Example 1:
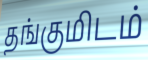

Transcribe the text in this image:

தங்குமிடம்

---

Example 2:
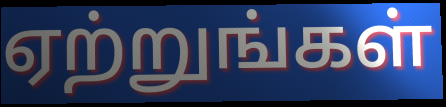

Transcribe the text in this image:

ஏற்றுங்கள்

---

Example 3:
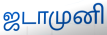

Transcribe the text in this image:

ஜடாமுனி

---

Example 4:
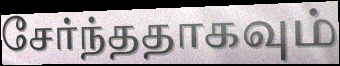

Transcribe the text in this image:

சேர்ந்ததாகவும்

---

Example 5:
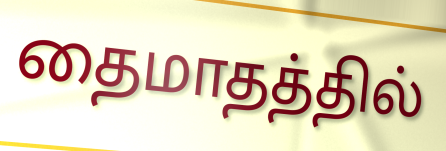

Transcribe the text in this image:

தைமாதத்தில்